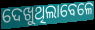
ଦେଖୁଥିଲାବେଳେ